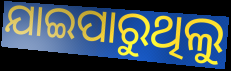
ଯାଇପାରୁଥିଲୁ